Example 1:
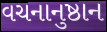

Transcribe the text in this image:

વચનાનુષ્ઠાન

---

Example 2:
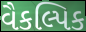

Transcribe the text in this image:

વૈકલ્પિક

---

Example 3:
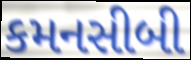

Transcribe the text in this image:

કમનસીબી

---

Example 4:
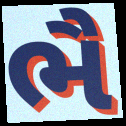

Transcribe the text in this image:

ભૈ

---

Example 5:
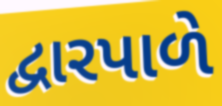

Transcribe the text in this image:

દ્વારપાળે